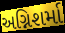
અગ્નિશર્મા